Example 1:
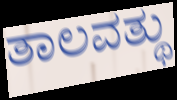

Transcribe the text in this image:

ತಾಲವತ್ಥು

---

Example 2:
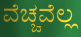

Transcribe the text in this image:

ವೆಚ್ಚವೆಲ್ಲ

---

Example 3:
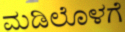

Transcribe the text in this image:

ಮಡಿಲೊಳಗೆ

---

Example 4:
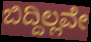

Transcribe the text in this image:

ಬಿದ್ದಿಲ್ಲವೇ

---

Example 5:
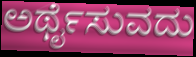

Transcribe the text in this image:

ಅರ್ಥೈಸುವದು